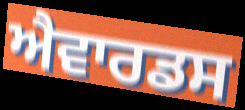
ਐਵਾਰਡਸ